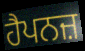
ਹੈਪਨਜ਼